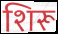
शिरू